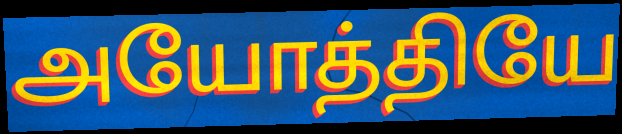
அயோத்தியே